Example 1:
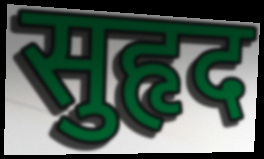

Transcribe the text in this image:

सुहृद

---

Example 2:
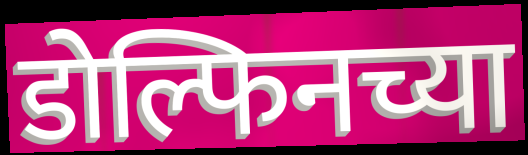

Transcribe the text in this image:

डोल्फिनच्या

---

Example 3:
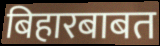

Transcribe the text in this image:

बिहारबाबत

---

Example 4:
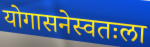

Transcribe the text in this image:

योगासनेस्वतःला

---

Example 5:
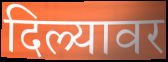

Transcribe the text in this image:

दिल्यावर